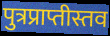
पुत्रप्राप्तीस्तव